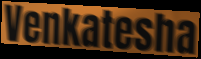
Venkatesha